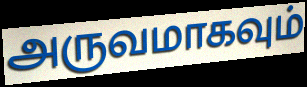
அருவமாகவும்